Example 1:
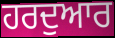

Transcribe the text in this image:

ਹਰਦੁਆਰ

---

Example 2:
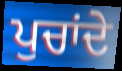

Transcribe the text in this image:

ਪੁਚਾਂਦੇ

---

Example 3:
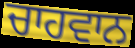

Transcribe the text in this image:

ਚਾਹਵਾਨ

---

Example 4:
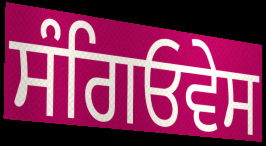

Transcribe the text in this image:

ਸੰਗਿਓਵੇਸ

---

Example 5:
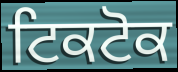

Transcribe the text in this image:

ਟਿਕਟੋਕ